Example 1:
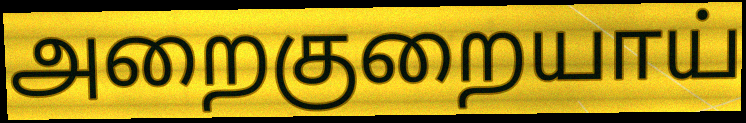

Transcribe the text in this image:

அறைகுறையாய்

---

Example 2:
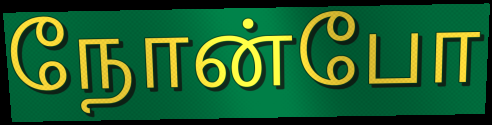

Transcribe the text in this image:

நோன்போ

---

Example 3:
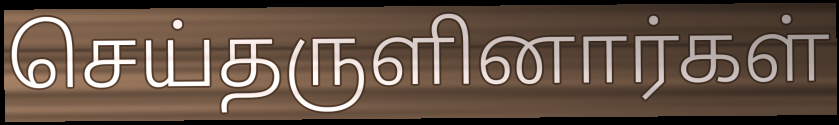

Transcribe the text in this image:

செய்தருளினார்கள்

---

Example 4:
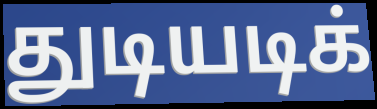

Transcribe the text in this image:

துடியடிக்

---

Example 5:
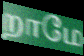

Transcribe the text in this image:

றாமே